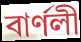
বাৰ্ণলী